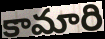
కామారి